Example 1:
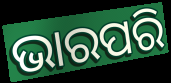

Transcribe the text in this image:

ଭାରପରି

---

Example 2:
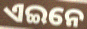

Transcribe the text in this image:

ଏଇନେ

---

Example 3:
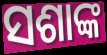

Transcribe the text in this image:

ସଶାଙ୍କ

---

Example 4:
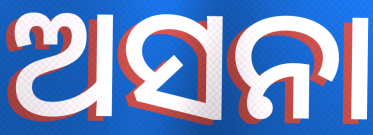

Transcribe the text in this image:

ଅସନା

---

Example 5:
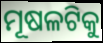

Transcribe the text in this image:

ମୂଷଳଟିକୁ